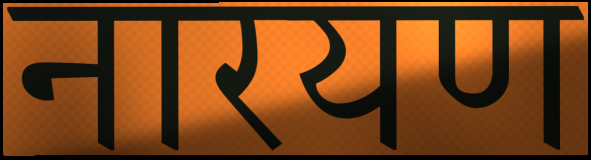
नारयण